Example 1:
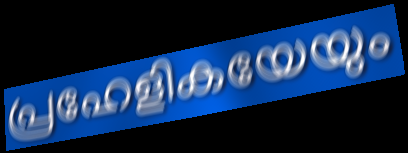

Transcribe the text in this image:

പ്രഹേളികയേയും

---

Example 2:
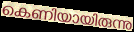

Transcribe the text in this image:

കെണിയായിരുന്നു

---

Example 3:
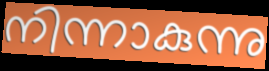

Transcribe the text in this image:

നിന്നാകുന്നു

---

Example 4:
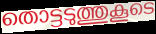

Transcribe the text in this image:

തൊട്ടടുത്തുകൂടെ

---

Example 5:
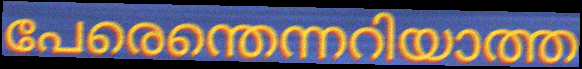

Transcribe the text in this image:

പേരെന്തെന്നറിയാത്ത